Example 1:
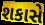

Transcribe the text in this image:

શકાસે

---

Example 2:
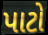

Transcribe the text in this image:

પાટો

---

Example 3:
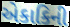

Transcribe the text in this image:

એકાકિની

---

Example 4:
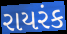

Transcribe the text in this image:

રાયરંક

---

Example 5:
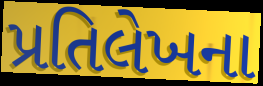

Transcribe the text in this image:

પ્રતિલેખના